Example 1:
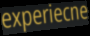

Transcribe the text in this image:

experiecne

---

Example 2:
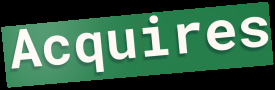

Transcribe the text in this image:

Acquires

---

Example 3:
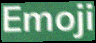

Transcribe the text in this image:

Emoji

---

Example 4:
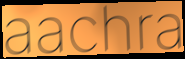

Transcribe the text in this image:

aachra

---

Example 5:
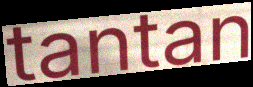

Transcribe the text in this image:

tantan